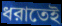
ধরাতেই